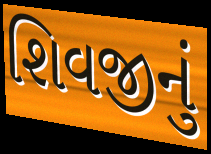
શિવજીનું